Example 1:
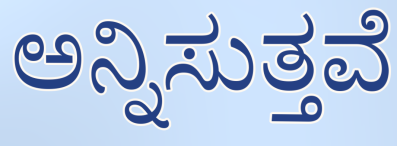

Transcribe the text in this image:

ಅನ್ನಿಸುತ್ತವೆ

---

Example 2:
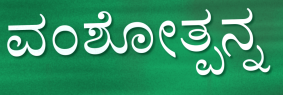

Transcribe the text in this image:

ವಂಶೋತ್ಪನ್ನ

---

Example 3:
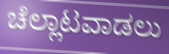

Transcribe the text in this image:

ಚೆಲ್ಲಾಟವಾಡಲು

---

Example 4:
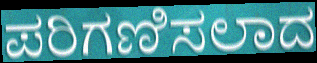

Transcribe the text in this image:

ಪರಿಗಣಿಸಲಾದ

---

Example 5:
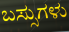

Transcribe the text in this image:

ಬಸ್ಸುಗಳು